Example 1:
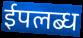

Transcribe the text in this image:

ईपलब्ध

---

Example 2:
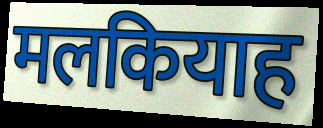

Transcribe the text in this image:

मलकियाह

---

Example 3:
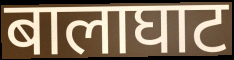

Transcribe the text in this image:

बालाघाट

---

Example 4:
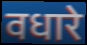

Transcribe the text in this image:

वधारे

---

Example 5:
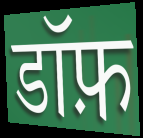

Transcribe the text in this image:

डॉफ़